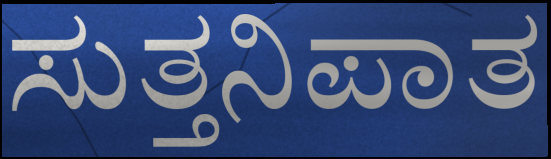
ಸುತ್ತನಿಪಾತ